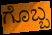
ಗೊಬ್ಬ